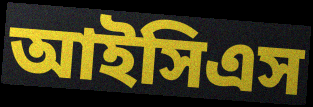
আইসিএস